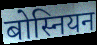
बोस्नियन